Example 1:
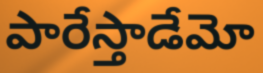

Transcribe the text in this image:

పారేస్తాడేమో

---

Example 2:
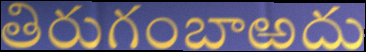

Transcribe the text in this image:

తిరుగంబాఱదు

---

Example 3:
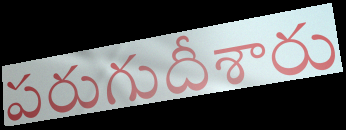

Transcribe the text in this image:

పరుగుదీశారు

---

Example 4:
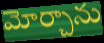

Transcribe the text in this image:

మోర్చాను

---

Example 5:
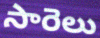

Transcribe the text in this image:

సారెలు